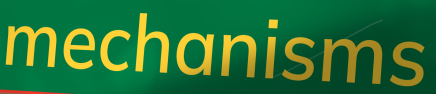
mechanisms